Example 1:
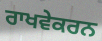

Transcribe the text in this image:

ਰਾਖਵੇਕਰਨ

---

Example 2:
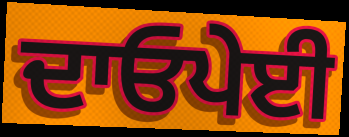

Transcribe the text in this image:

ਦਾਓਪੇਈ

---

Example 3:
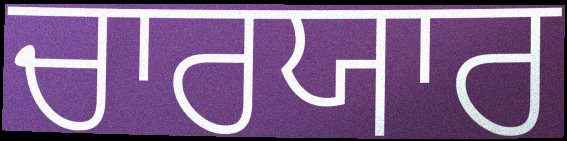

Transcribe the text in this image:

ਚਾਰਯਾਰ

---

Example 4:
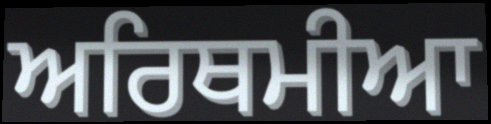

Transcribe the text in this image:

ਅਰਿਥਮੀਆ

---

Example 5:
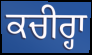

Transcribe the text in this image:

ਕਚੀਰ੍ਹਾ